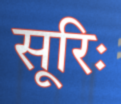
सूरिः